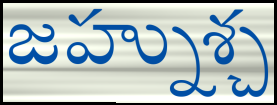
జహ్నుశ్చ